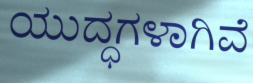
ಯುದ್ಧಗಳಾಗಿವೆ